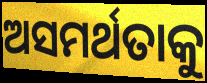
ଅସମର୍ଥତାକୁ